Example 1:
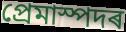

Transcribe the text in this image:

প্ৰেমাস্পদৰ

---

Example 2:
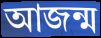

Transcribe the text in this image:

আজন্ম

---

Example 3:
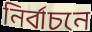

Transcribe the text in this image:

নিৰ্বাচনে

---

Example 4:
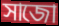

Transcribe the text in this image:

সাজো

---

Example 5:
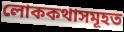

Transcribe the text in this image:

লোককথাসমূহত